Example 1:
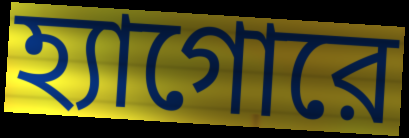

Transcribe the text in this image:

হ্যাগোরে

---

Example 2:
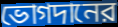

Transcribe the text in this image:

ভোগদানের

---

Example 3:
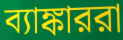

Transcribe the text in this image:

ব্যাঙ্কাররা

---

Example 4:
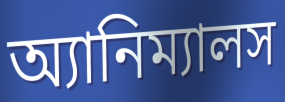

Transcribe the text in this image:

অ্যানিম্যালস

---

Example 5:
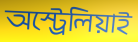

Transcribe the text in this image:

অস্ট্রেলিয়াই